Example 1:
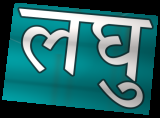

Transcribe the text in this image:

लघु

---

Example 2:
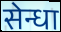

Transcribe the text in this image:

सेन्धा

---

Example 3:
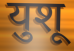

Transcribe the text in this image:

युशू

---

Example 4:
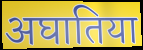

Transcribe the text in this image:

अघातिया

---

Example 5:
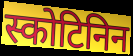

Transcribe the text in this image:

स्कोटिनिन